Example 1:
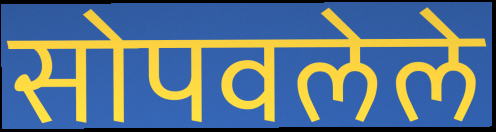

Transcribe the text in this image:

सोपवलेले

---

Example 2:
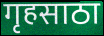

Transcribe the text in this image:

गृहसाठा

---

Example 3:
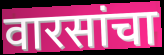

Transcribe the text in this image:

वारसांचा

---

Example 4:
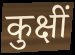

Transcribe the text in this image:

कुक्षीं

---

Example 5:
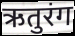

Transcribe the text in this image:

ऋतुरंग